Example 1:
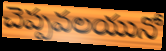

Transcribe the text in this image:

చెప్పవలయునో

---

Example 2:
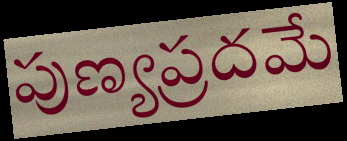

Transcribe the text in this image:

పుణ్యప్రదమే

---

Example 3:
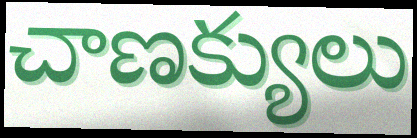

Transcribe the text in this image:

చాణక్యులు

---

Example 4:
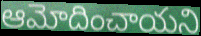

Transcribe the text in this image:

ఆమోదించాయని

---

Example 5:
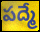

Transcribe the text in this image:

పద్మే